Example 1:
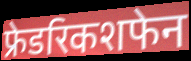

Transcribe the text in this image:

फ्रेडरिकशफेन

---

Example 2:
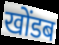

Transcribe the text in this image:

खोंडब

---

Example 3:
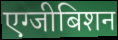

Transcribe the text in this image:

एग्जीबिशन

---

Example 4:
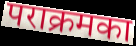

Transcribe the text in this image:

पराक्रमका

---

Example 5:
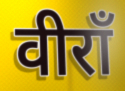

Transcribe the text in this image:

वीराँ